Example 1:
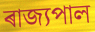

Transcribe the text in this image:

ৰাজ্যপাল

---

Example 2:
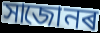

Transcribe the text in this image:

সাজোনৰ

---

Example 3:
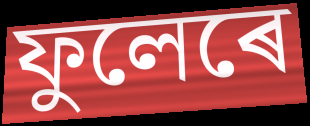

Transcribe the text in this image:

ফুলেৰে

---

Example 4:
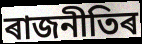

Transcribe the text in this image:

ৰাজনীতিৰ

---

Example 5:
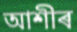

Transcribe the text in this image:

আশীৰ